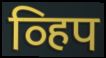
व्हिप